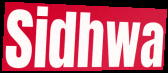
Sidhwa